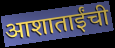
आशाताईंची